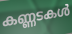
കണ്ണടകൾ